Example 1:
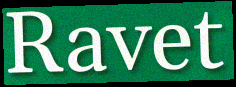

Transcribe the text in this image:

Ravet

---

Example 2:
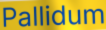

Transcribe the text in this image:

Pallidum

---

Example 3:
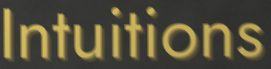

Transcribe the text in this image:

Intuitions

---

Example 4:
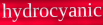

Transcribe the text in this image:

hydrocyanic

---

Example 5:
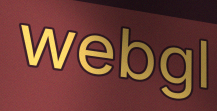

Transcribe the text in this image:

webgl